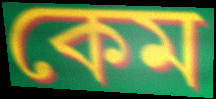
কেম